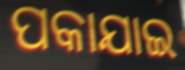
ପକାଯାଇ